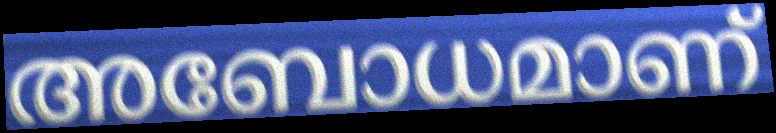
അബോധമാണ്